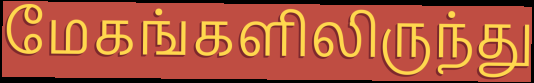
மேகங்களிலிருந்து